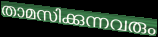
താമസിക്കുന്നവരും